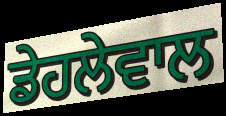
ਡੇਹਲੇਵਾਲ